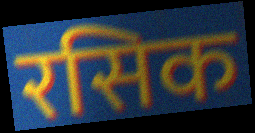
रसिक